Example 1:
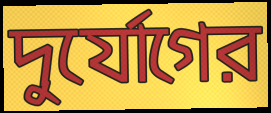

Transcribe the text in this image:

দুর্যোগের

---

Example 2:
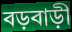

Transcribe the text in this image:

বড়বাড়ী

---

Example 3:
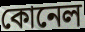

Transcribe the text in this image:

কোনেল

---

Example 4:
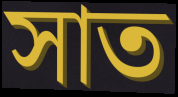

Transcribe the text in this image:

সাত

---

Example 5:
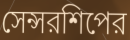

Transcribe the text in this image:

সেন্সরশিপের